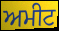
ਅਮੀਟ